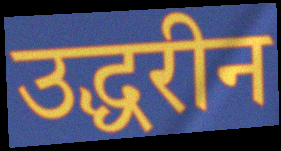
उद्धरीन